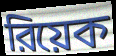
রিয়েক